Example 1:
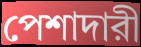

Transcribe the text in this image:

পেশাদারী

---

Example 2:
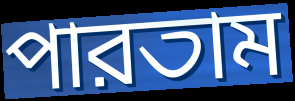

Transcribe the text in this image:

পারতাম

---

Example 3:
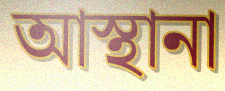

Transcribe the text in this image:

আস্থানা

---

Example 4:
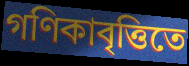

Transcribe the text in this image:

গণিকাবৃত্তিতে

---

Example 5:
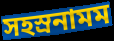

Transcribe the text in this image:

সহস্রনামম